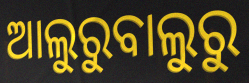
ଆଲୁରୁବାଲୁରୁ